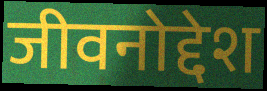
जीवनोद्देश